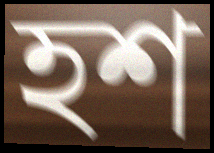
হশ